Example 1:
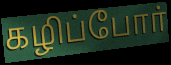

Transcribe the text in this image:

கழிப்போர்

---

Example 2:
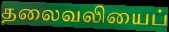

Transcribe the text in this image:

தலைவலியைப்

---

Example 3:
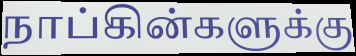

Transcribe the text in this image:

நாப்கின்களுக்கு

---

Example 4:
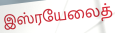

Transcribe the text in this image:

இஸ்ரயேலைத்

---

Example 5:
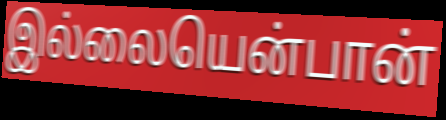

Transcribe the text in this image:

இல்லையென்பான்